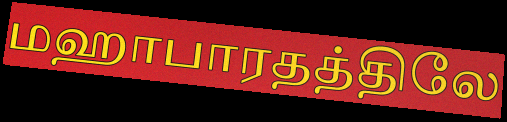
மஹாபாரதத்திலே